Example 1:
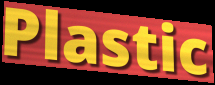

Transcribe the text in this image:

Plastic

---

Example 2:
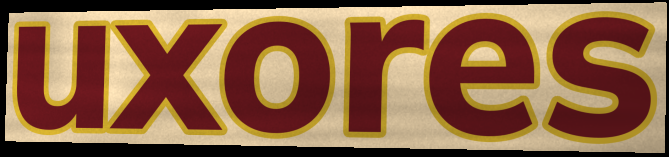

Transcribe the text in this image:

uxores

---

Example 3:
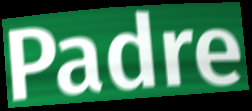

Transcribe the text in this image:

Padre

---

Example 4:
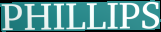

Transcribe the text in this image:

PHILLIPS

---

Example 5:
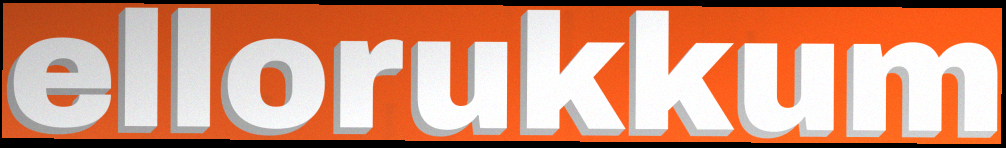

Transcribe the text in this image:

ellorukkum